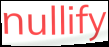
nullify